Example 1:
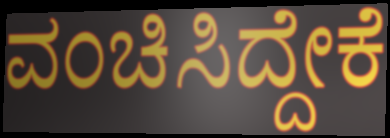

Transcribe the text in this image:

ವಂಚಿಸಿದ್ದೇಕೆ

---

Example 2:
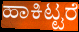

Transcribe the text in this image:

ಹಾಕಿಟ್ಟರೆ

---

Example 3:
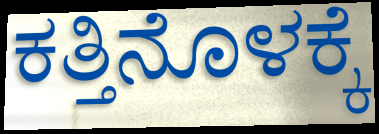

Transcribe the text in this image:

ಕತ್ತಿನೊಳಕ್ಕೆ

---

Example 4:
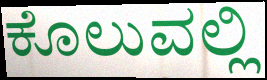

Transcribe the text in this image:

ಕೊಲುವಲ್ಲಿ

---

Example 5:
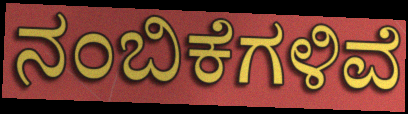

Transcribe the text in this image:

ನಂಬಿಕೆಗಳಿವೆ